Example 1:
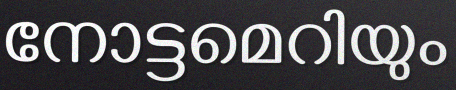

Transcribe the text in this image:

നോട്ടമെറിയും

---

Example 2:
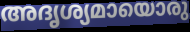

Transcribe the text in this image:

അദൃശ്യമായൊരു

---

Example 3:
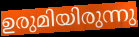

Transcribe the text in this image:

ഉരുമിയിരുന്നു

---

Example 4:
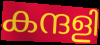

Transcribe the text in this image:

കന്ദളി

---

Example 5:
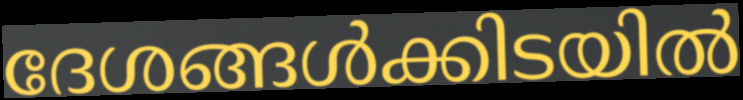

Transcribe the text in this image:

ദേശങ്ങൾക്കിടയിൽ